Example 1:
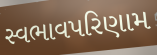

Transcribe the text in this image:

સ્વભાવપરિણામ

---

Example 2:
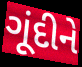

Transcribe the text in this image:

ગૂંદીને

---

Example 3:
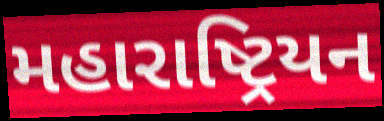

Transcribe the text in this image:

મહારાષ્ટ્રિયન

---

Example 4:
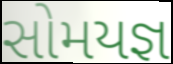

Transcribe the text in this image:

સોમયજ્ઞ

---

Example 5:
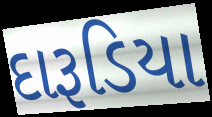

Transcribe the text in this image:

દારૂડિયા